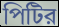
পিটির